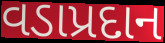
વડાપ્રદાન